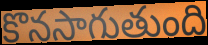
కొనసాగుతుంది